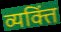
व्यक्तिं